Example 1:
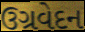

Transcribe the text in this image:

ઉગ્રવેદન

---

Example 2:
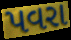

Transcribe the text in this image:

પવરા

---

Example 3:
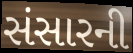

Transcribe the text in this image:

સંસારની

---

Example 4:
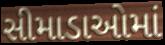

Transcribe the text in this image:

સીમાડાઓમાં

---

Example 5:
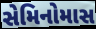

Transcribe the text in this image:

સેમિનોમાસ